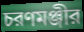
চরণমঞ্জীর